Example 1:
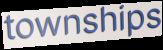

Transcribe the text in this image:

townships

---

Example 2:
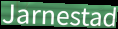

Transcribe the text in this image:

Jarnestad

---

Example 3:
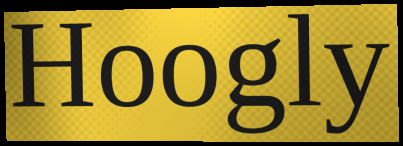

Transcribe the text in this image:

Hoogly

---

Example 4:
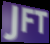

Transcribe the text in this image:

JFT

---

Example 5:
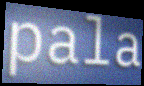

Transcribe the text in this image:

pala